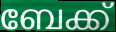
ബേക്ക്